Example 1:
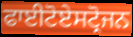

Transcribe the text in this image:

ਫਾਈਟੋਏਸਟ੍ਰੋਜਨ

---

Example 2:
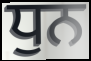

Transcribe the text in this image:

ਧੁਨ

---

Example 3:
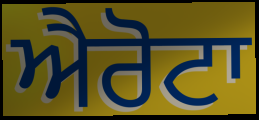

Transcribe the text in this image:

ਐਰੋਟਾ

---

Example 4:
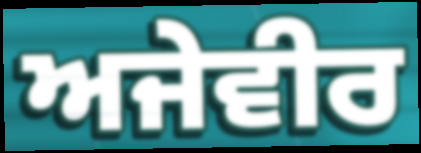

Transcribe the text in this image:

ਅਜੇਵੀਰ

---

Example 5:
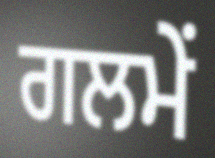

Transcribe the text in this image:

ਗਲਮੇਂ